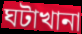
ঘটাখানা